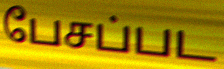
பேசப்பட